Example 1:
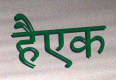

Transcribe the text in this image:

हैएक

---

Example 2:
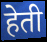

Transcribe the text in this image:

हेती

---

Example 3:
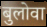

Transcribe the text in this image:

बुलोवा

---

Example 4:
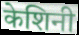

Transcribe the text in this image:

केशिनी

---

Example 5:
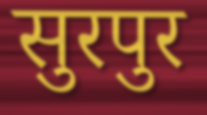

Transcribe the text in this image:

सुरपुर